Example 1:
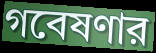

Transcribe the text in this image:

গবেষণার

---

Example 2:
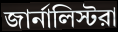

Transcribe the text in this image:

জার্নালিস্টরা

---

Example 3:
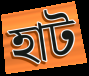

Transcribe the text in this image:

হাট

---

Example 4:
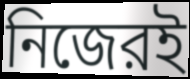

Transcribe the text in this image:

নিজেরই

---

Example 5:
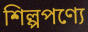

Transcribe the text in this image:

শিল্পপণ্যে